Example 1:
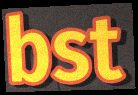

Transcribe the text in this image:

bst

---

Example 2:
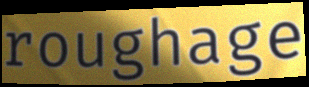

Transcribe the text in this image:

roughage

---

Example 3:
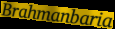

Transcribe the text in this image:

Brahmanbaria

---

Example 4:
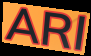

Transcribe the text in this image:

ARI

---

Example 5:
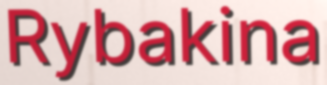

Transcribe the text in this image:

Rybakina